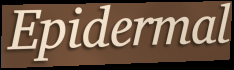
Epidermal